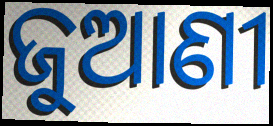
ଜୁଆଣୀ